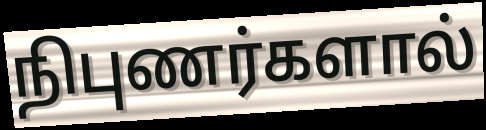
நிபுணர்களால்